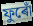
ফুৰোঁ